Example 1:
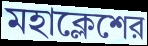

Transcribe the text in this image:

মহাক্লেশের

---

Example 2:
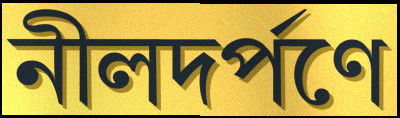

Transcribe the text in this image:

নীলদর্পণে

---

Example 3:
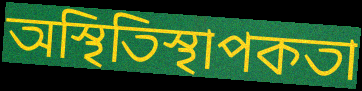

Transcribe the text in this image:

অস্থিতিস্থাপকতা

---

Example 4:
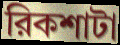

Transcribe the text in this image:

রিকশাটা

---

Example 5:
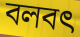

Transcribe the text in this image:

বলবৎ